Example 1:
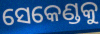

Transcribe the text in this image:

ସେକେଣ୍ଡକୁ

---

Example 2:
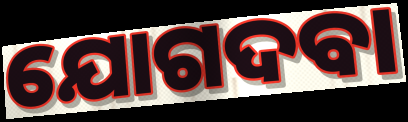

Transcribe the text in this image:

ଯୋଗଦବା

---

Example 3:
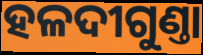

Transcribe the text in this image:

ହଳଦୀଗୁଣ୍ତା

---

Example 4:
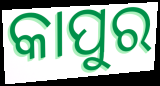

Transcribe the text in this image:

କାପୁର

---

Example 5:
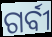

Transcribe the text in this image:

ଗର୍ବୀ